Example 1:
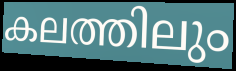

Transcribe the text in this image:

കലത്തിലും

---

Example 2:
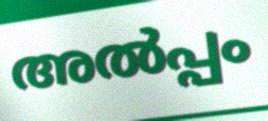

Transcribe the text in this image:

അൽപ്പം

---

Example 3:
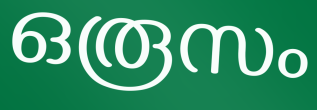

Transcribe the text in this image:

ഒരൂസം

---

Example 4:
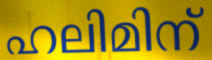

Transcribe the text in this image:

ഹലിമിന്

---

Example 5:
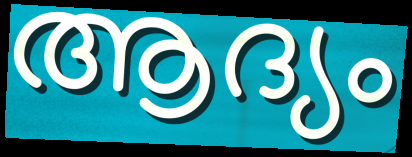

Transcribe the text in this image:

ആദ്യം